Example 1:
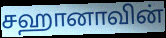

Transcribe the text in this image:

சஹானாவின்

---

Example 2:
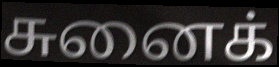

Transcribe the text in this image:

சுனைக்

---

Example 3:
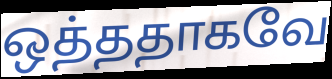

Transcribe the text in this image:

ஒத்ததாகவே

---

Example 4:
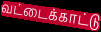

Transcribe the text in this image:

வட்டைக்காட்டு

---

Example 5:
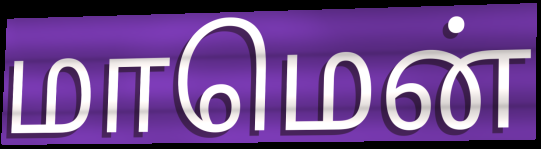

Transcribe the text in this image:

மாமென்